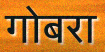
गोबरा